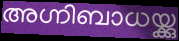
അഗ്നിബാധയ്ക്കു